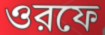
ওরফে